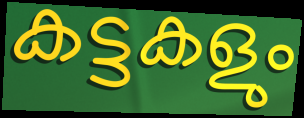
കട്ടകളും